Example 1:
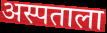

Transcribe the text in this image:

अस्पताला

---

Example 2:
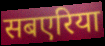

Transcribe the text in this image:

सबएरिया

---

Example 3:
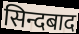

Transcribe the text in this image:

सिन्दबाद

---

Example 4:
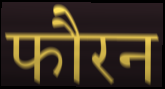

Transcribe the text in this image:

फौरन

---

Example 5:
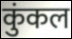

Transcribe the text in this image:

कुंकल